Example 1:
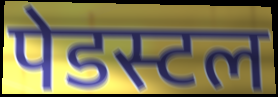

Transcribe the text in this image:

पेडस्टल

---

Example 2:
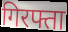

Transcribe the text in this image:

गिरफ्ता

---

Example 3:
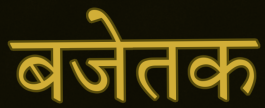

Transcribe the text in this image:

बजेतक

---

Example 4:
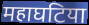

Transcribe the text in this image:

महाघटिया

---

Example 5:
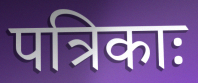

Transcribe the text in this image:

पत्रिकाः